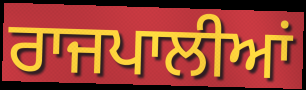
ਰਾਜਪਾਲੀਆਂ